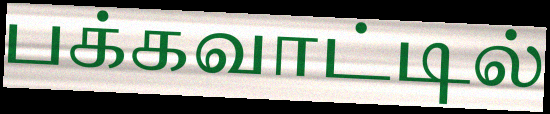
பக்கவாட்டில்